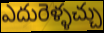
ఎదురెళ్ళచ్చు